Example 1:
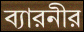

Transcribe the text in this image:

ব্যারনীর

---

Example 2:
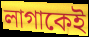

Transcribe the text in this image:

লাগাকেই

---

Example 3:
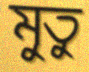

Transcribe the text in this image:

মুতু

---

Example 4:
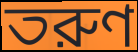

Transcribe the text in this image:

তরুণ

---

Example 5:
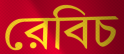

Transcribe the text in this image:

রেবিচ